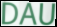
DAU